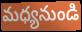
మధ్యనుండి